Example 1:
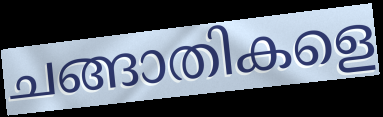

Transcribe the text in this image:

ചങ്ങാതികളെ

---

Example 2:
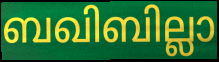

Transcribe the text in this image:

ബഖിബില്ലാ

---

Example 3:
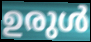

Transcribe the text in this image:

ഉരുൾ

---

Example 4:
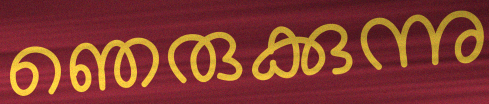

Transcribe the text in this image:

ഞെരുക്കുന്നു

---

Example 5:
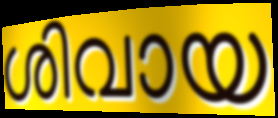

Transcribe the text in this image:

ശിവായ